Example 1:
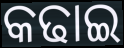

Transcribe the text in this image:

କଢାଇ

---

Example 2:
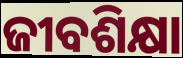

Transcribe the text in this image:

ଜୀବଶିକ୍ଷା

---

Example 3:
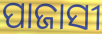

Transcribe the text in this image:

ପାଜାସୀ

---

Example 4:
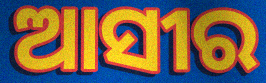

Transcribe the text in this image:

ଆସୀର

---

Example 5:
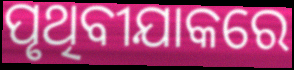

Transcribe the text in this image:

ପୃଥିବୀଯାକରେ